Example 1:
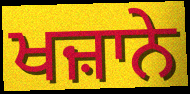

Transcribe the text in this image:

ਖਜ਼ਾਨੇ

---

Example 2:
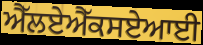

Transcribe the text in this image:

ਐੱਲਏਐੱਕਸਏਆਈ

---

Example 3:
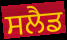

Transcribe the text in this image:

ਸਲੈਡ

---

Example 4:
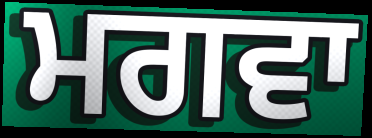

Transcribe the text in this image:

ਮਗਵਾ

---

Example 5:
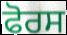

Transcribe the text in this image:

ਫੋਰਸ